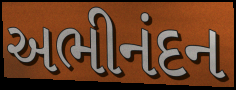
અભીનંદન